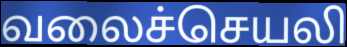
வலைச்செயலி